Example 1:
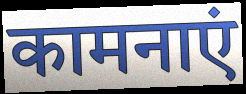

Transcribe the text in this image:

कामनाएं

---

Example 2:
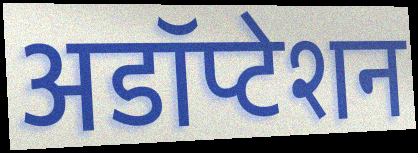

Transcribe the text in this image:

अडॉप्टेशन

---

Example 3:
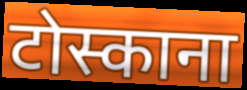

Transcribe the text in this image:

टोस्काना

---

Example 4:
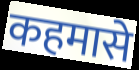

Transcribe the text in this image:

कहमासे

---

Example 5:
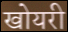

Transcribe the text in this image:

खोयरी